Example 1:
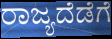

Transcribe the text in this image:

ರಾಜ್ಯದೆಡೆಗೆ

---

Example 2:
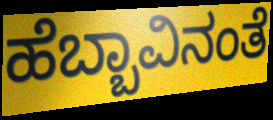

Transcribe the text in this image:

ಹೆಬ್ಬಾವಿನಂತೆ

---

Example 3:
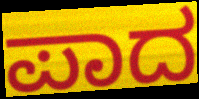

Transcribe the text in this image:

ಪಾದ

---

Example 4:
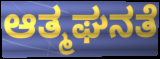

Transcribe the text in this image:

ಆತ್ಮಘನತೆ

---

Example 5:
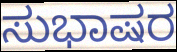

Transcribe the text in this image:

ಸುಭಾಷರ